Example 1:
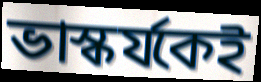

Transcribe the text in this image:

ভাস্কর্যকেই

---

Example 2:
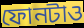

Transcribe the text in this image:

ফোনটাও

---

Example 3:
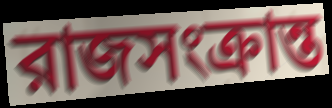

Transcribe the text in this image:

রাজসংক্রান্ত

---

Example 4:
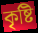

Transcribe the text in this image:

কৃষ্টি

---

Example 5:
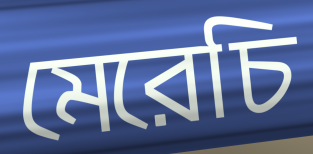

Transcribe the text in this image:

মেরেচি